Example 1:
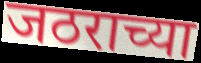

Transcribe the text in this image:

जठराच्या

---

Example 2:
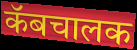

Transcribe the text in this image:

कॅबचालक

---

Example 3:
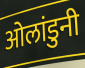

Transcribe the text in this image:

ओलांडुनी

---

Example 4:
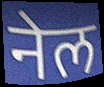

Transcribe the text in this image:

नेल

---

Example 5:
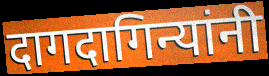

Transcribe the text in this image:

दागदागिन्यांनी